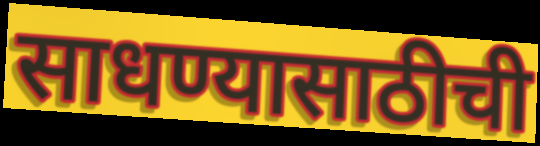
साधण्यासाठीची